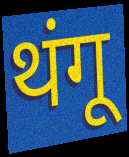
थंगू